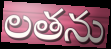
లతను